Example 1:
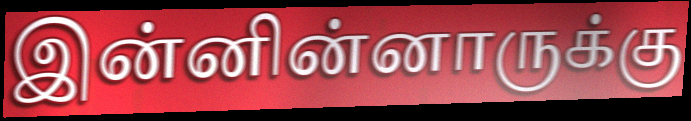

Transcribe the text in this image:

இன்னின்னாருக்கு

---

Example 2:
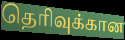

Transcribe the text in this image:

தெரிவுக்கான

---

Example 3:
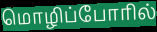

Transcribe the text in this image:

மொழிப்போரில்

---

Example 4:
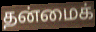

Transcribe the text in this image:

தன்மைக்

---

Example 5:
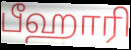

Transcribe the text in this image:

பீஹாரி